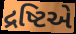
દ્રષ્ટિએ